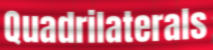
Quadrilaterals